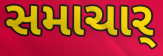
સમાચાર્